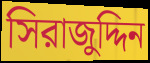
সিরাজুদ্দিন